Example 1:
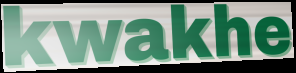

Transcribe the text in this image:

kwakhe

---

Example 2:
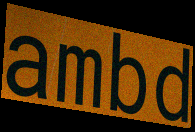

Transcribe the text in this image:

ambd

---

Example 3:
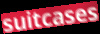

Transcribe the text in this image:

suitcases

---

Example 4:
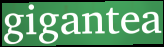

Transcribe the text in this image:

gigantea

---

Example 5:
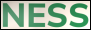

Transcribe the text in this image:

NESS